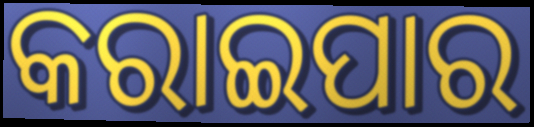
କରାଇପାର